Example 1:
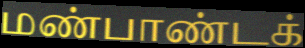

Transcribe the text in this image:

மண்பாண்டக்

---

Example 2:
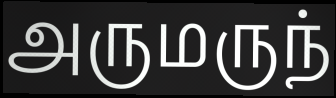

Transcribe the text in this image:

அருமருந்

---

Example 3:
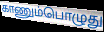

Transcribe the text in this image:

காணும்பொழுது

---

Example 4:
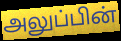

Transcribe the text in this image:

அலுப்பின்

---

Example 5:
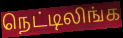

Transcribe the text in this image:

நெட்டிலிங்க